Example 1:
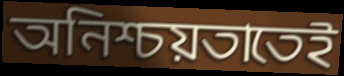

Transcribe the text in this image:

অনিশ্চয়তাতেই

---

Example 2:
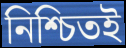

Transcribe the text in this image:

নিশ্চিতই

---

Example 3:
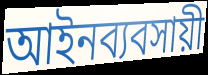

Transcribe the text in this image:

আইনব্যবসায়ী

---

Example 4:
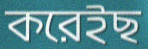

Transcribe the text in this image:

করেইছ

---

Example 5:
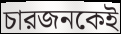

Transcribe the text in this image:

চারজনকেই